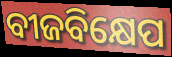
ବୀଜବିକ୍ଷେପ